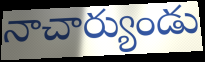
నాచార్యుండు